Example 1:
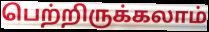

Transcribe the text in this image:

பெற்றிருக்கலாம்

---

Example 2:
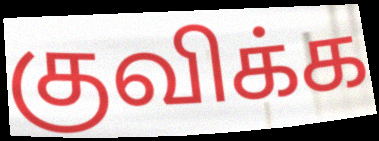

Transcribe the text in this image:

குவிக்க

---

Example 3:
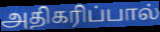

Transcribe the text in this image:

அதிகரிப்பால்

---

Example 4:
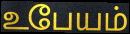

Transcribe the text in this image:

உபேயம்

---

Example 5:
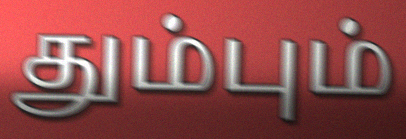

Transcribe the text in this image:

தும்பும்